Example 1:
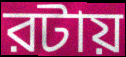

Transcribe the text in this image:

রটায়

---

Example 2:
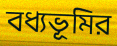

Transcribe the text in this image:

বধ্যভূমির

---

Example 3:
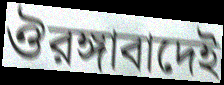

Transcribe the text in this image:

ঔরঙ্গাবাদেই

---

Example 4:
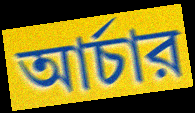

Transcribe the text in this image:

আর্চার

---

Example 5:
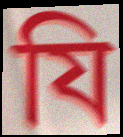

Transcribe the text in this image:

যি